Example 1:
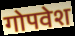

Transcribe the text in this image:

गोपवेश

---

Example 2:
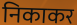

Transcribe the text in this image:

निकाकर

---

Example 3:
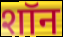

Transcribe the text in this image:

शॉन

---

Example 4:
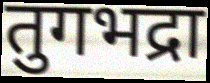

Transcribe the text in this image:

तुगभद्रा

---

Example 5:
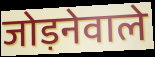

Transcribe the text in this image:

जोड़नेवाले